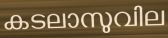
കടലാസുവില